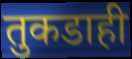
तुकडाही